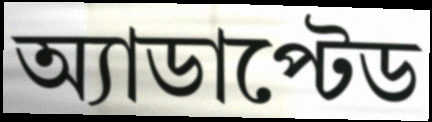
অ্যাডাপ্টেড